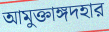
আমুক্তাঙ্গদহার